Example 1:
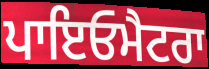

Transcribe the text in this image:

ਪਾਇਓਮੈਟਰਾ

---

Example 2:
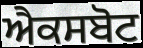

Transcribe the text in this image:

ਐਕਸਬੋਟ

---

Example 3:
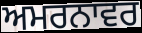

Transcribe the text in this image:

ਅਮਰਨਾਵਰ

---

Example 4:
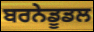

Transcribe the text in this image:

ਬਰਨੇਡੂਡਲ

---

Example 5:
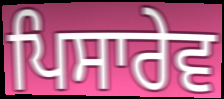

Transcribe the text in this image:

ਪਿਸਾਰੇਵ